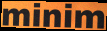
minim